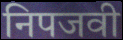
निपजवी